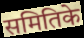
समितिके